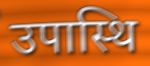
उपास्थि